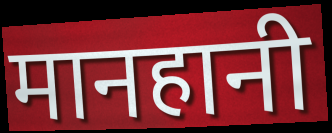
मानहानी